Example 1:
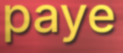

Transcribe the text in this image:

paye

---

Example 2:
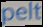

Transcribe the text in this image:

pelt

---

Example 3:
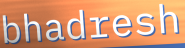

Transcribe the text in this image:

bhadresh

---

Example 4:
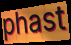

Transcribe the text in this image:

phast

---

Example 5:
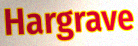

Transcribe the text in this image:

Hargrave